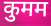
कुमम